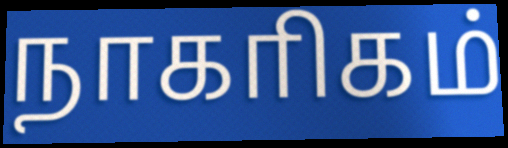
நாகரிகம்